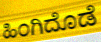
ಹಿಂಗಿದೊಡೆ